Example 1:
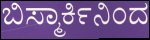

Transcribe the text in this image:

ಬಿಸ್ಮಾರ್ಕಿನಿಂದ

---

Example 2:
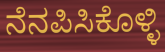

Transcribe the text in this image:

ನೆನಪಿಸಿಕೊಳ್ಳಿ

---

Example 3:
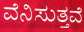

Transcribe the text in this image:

ವೆನಿಸುತ್ತವೆ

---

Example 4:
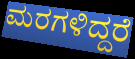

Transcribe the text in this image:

ಮರಗಳಿದ್ದರೆ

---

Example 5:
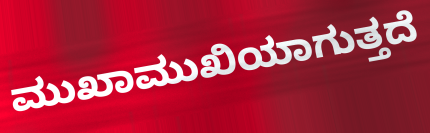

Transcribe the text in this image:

ಮುಖಾಮುಖಿಯಾಗುತ್ತದೆ